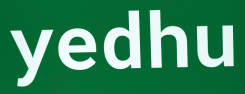
yedhu